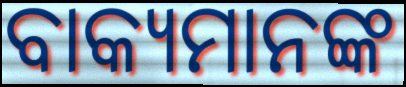
ବାକ୍ୟମାନଙ୍କ